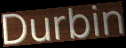
Durbin